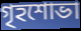
গৃহশোভা